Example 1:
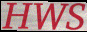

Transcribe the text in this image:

HWS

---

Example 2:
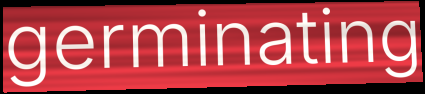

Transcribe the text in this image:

germinating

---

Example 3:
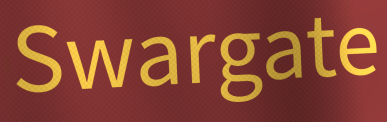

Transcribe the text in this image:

Swargate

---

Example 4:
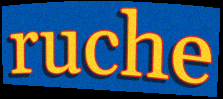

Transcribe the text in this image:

ruche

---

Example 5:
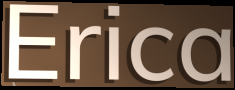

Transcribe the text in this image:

Erica